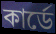
কার্ডে